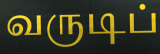
வருடிப்